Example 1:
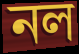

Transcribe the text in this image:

নল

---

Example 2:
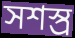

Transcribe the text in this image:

সশস্ত্ৰ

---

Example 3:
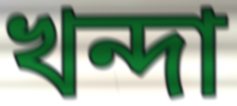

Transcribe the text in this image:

খন্দা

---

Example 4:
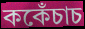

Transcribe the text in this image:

ককেঁচাচ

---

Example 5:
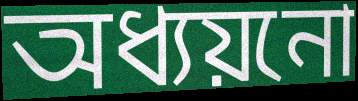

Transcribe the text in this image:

অধ্যয়নো